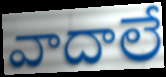
వాదాలే